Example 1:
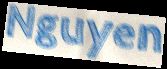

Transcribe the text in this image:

Nguyen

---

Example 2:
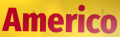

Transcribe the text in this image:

Americo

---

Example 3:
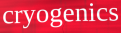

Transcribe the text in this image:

cryogenics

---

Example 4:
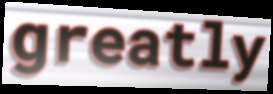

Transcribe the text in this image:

greatly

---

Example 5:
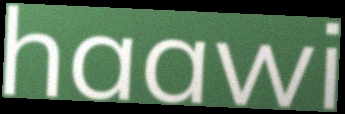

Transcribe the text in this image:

haawi